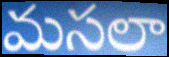
మసలా